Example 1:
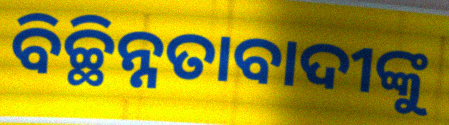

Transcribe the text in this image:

ବିଚ୍ଛିନ୍ନତାବାଦୀଙ୍କୁ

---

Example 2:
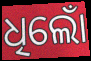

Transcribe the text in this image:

ଧିଲୋଁ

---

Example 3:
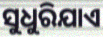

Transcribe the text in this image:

ସୁଧୁରିଯାଏ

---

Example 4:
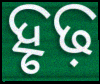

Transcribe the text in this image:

ହୃଢ଼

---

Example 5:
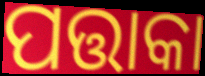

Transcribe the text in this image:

ପତ୍ତାକା